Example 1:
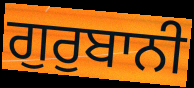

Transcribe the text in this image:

ਗੁਰੁਬਾਨੀ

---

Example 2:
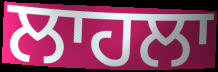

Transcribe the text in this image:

ਲਾਹਲਾ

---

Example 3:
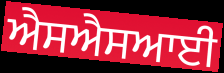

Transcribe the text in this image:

ਐਸਐਸਆਈ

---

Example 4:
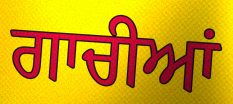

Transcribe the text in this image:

ਗਾਚੀਆਂ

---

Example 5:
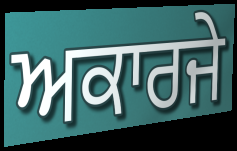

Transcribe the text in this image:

ਅਕਾਰਜੇ